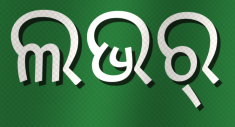
ଲଭର୍